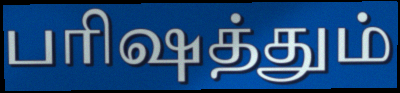
பரிஷத்தும்